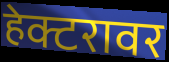
हेक्टरावर